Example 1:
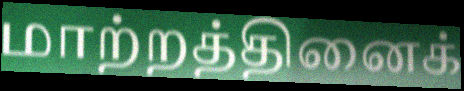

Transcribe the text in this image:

மாற்றத்தினைக்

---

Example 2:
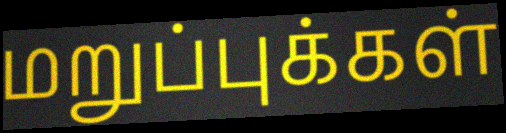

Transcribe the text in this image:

மறுப்புக்கள்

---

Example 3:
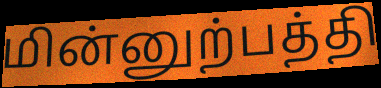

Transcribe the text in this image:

மின்னுற்பத்தி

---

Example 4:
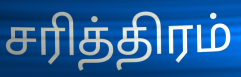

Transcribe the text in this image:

சரித்திரம்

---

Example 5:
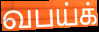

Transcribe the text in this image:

வபய்க்